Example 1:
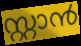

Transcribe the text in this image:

സ്റ്റാൻ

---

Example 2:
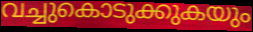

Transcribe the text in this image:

വച്ചുകൊടുക്കുകയും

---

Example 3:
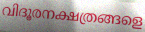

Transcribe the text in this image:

വിദൂരനക്ഷത്രങ്ങളെ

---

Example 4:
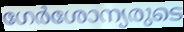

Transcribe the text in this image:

ഗേർശോന്യരുടെ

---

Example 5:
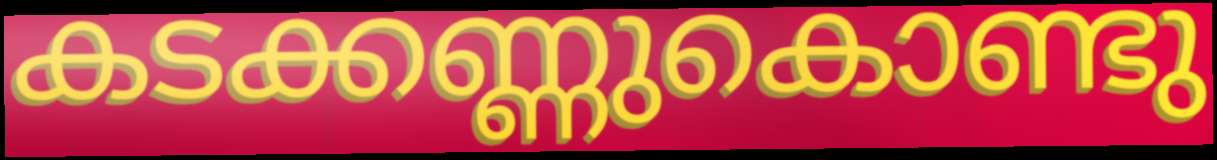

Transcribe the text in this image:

കടക്കണ്ണുകൊണ്ടു